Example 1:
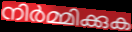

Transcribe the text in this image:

നിർമ്മിക്കുക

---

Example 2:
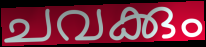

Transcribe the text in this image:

ചവക്കും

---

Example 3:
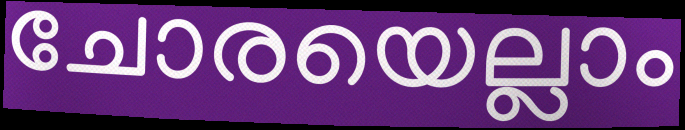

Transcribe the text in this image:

ചോരയെല്ലാം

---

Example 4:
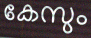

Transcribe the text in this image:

കേസും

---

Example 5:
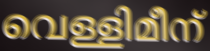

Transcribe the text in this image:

വെള്ളിമീന്